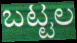
ಬಟ್ಟಲ